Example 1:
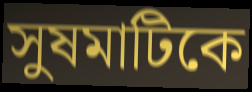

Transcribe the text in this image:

সুষমাটিকে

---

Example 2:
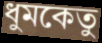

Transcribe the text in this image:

ধুমকেতু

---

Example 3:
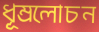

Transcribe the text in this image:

ধূম্রলোচন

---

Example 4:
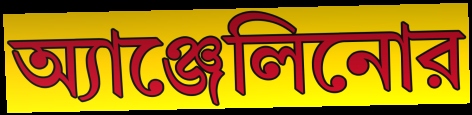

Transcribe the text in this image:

অ্যাঞ্জেলিনোর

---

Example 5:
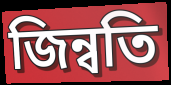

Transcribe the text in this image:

জিন্বতি